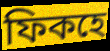
ফিকহে